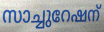
സാച്ചുറേഷന്